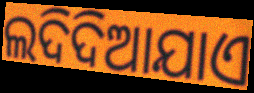
ଲଦିଦିଆଯାଏ